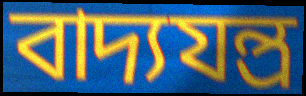
বাদ্যযন্ত্ৰ